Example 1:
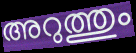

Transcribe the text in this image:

അറുത്തും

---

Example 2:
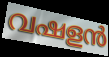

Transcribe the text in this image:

വഷളൻ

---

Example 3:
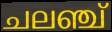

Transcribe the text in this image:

ചലഞ്ച്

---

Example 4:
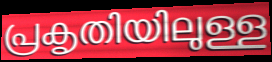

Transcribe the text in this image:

പ്രകൃതിയിലുള്ള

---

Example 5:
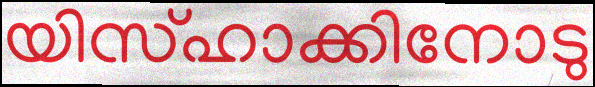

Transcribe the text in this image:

യിസ്ഹാക്കിനോടു